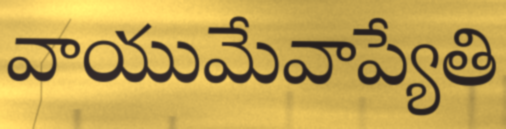
వాయుమేవాప్యేతి